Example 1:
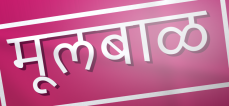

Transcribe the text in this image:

मूलबाळ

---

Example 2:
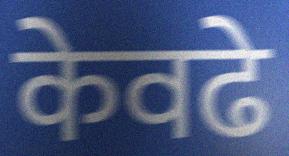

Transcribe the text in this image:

केवढे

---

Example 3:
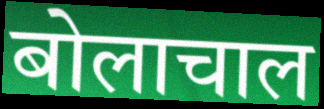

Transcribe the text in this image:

बोलाचाल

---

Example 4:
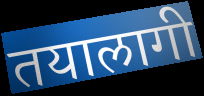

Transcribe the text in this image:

तयालागी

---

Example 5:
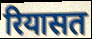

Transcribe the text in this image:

रियासत